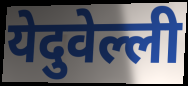
येदुवेल्ली